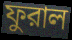
ফুরাল